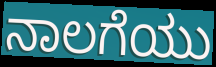
ನಾಲಗೆಯು